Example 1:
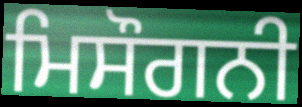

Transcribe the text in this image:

ਮਿਸੌਗਨੀ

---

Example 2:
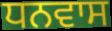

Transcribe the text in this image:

ਧਨਵਾਸ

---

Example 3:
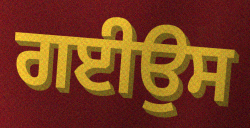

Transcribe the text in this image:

ਗਈਉਸ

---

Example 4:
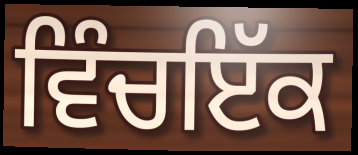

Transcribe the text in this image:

ਵਿੰਚਇੱਕ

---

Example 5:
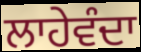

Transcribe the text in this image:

ਲਾਹੇਵੰਦਾ